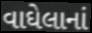
વાઘેલાનાં